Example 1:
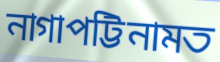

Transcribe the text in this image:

নাগাপট্টিনামত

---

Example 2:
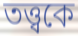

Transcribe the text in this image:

তত্ত্বকে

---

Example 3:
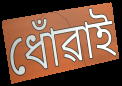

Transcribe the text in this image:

ধোঁৱাই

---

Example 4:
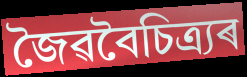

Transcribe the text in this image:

জৈৱবৈচিত্ৰ্যৰ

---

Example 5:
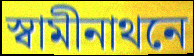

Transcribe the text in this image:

স্বামীনাথনে